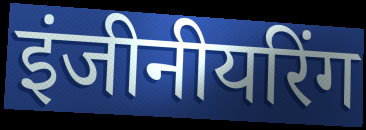
इंजीनीयरिंग